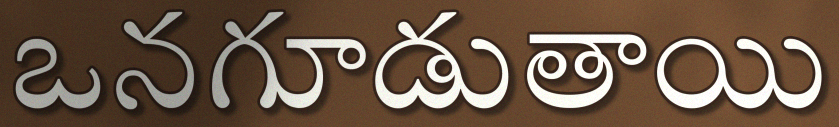
ఒనగూడుతాయి